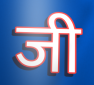
जी